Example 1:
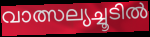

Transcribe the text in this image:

വാത്സല്യച്ചൂടിൽ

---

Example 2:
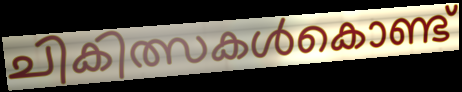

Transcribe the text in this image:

ചികിത്സകൾകൊണ്ട്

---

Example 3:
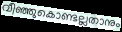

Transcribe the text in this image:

വീഞ്ഞുകൊണ്ടല്ലതാനും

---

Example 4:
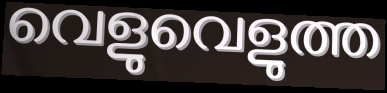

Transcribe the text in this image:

വെളുവെളുത്ത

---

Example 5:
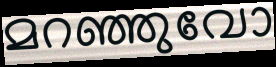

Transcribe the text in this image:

മറഞ്ഞുവോ